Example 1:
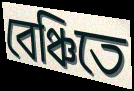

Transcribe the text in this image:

বেঞ্চিতে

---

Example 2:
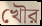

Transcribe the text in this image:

খৌর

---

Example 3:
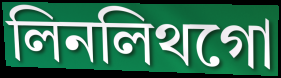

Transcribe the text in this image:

লিনলিথগো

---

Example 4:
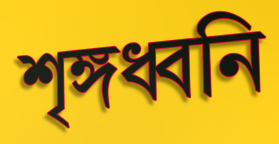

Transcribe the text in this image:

শৃঙ্গধ্বনি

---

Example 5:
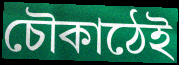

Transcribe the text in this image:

চৌকাঠেই